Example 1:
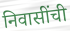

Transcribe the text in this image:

निवासींची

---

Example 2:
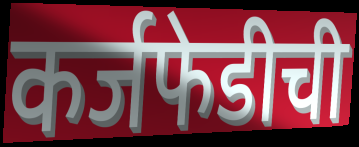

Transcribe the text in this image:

कर्जफेडीची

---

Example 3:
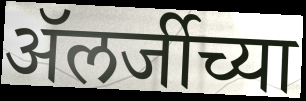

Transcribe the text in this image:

ॲलर्जीच्या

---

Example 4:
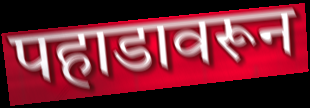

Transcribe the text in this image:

पहाडावरून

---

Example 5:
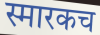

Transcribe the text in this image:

स्मारकच